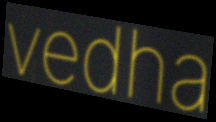
vedha